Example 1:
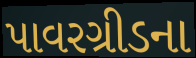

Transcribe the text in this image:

પાવરગ્રીડના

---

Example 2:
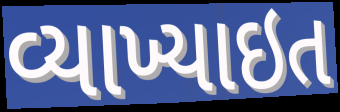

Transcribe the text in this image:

વ્યાખ્યાઇત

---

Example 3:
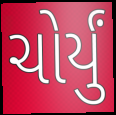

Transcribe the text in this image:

ચોર્યું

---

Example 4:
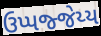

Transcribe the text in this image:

ઉપ્પજ્જેય્ય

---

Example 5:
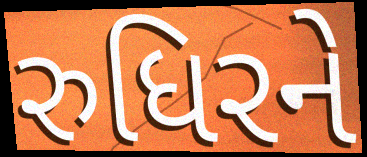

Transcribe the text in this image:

રુધિરને